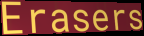
Erasers